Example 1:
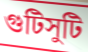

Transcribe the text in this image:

গুটিসুটি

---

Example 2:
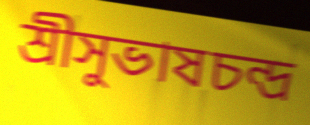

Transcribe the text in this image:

শ্রীসুভাষচন্দ্র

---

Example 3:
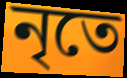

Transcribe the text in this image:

নৃতে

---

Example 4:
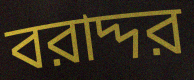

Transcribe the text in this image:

বরাদ্দর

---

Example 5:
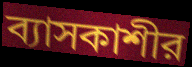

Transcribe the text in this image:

ব্যাসকাশীর